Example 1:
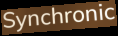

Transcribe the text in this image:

Synchronic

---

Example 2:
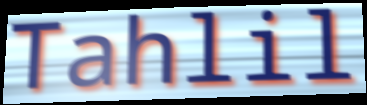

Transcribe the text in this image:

Tahlil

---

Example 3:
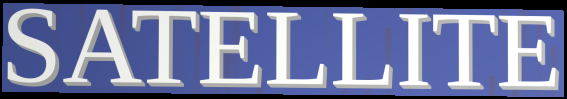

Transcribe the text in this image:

SATELLITE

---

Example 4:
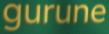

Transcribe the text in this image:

gurune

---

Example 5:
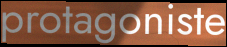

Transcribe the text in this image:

protagoniste